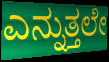
ಎನ್ನುತ್ತಲೇ